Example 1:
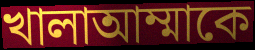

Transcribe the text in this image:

খালাআম্মাকে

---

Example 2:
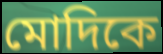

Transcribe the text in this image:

মোদিকে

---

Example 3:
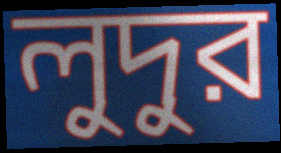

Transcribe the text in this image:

লুদুর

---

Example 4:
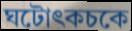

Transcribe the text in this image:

ঘটোৎকচকে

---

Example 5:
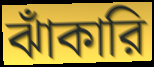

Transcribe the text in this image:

ঝাঁকারি